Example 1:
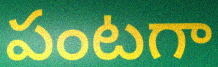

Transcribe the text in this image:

పంటగా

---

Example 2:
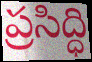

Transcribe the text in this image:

ప్రసిద్ధి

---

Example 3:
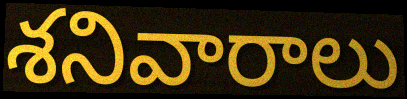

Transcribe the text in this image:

శనివారాలు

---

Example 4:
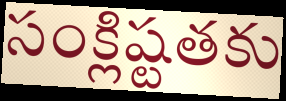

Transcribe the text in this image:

సంక్లిష్టతకు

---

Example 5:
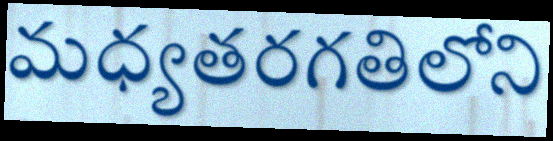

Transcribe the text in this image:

మధ్యతరగతిలోని